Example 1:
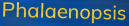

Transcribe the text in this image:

Phalaenopsis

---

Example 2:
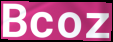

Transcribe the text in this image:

Bcoz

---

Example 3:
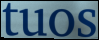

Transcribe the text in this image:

tuos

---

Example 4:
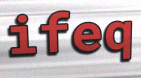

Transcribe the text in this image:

ifeq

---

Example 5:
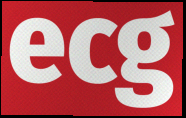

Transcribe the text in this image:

ecg